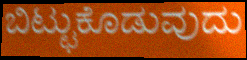
ಬಿಟ್ಟುಕೊಡುವುದು